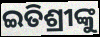
ଇତିଶ୍ରୀଙ୍କୁ